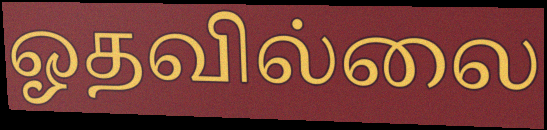
ஓதவில்லை